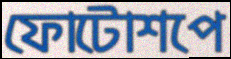
ফোটোশপে